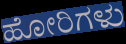
ಹೋರಿಗಳು